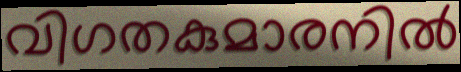
വിഗതകുമാരനിൽ